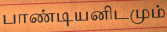
பாண்டியனிடமும்